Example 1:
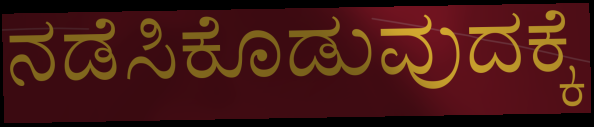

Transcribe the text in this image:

ನಡೆಸಿಕೊಡುವುದಕ್ಕೆ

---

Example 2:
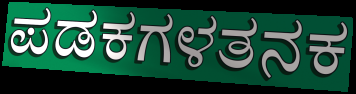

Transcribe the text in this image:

ಪಡಕಗಳತನಕ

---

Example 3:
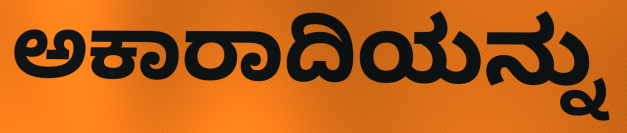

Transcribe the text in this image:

ಅಕಾರಾದಿಯನ್ನು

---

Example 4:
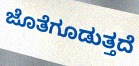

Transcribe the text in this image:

ಜೊತೆಗೂಡುತ್ತದೆ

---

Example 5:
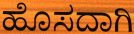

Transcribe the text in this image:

ಹೊಸದಾಗಿ